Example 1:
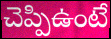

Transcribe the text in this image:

చెప్పిఉంటే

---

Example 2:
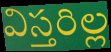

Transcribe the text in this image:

విస్తరిల్ల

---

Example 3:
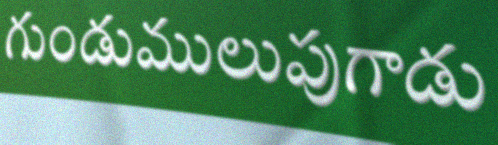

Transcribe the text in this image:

గుండుములుపుగాడు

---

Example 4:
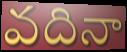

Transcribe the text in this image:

వదినా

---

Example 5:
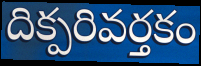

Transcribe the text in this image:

దిక్పరివర్తకం